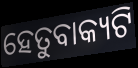
ହେତୁବାକ୍ୟଟି